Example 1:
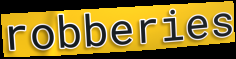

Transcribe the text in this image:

robberies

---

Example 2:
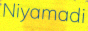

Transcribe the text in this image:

Niyamadi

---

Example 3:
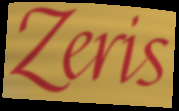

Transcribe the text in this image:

Zeris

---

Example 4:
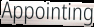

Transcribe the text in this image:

Appointing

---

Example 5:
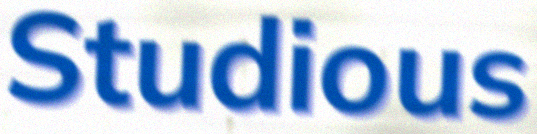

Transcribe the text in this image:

Studious